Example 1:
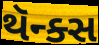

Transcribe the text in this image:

થૅન્ક્સ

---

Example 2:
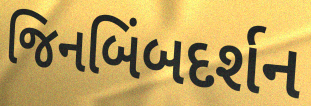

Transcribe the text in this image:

જિનબિંબદર્શન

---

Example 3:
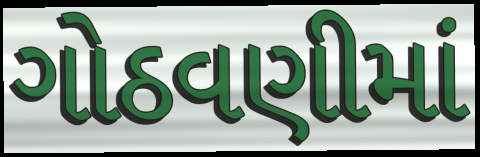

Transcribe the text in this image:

ગોઠવણીમાં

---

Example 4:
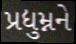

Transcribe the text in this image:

પ્રદ્યુમ્નને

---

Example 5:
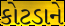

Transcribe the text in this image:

કોટડાને